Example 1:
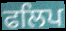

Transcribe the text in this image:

ਫਲਿਪ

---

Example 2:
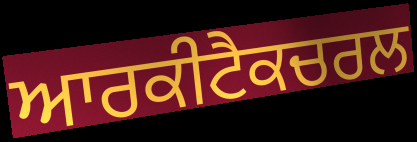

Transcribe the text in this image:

ਆਰਕੀਟੈਕਚਰਲ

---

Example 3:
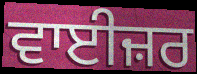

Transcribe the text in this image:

ਵਾਈਜ਼ਰ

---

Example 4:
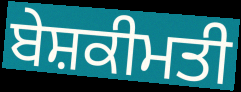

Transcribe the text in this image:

ਬੇਸ਼ਕੀਮਤੀ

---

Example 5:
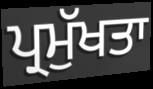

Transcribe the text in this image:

ਪ੍ਰਮੁੱਖਤਾ